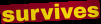
survives